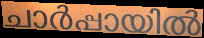
ചാർപ്പായിൽ